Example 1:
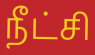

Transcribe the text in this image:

நீட்சி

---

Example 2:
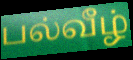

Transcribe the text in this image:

பல்வீழ்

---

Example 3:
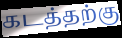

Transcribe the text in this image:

கடத்தற்கு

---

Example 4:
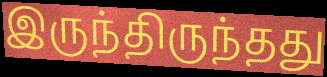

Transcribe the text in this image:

இருந்திருந்தது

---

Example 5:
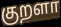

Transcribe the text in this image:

குறளா